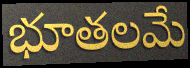
భూతలమే